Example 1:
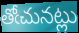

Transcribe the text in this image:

తోఁచునట్లు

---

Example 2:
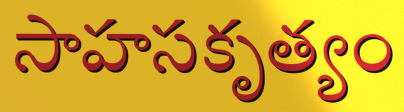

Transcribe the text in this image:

సాహసకృత్యం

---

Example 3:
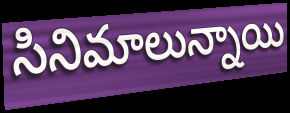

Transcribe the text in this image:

సినిమాలున్నాయి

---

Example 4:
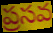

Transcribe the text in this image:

ప్రసవ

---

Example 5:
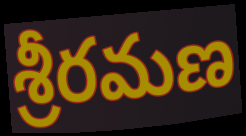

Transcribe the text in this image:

శ్రీరమణ